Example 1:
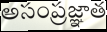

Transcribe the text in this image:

అసంప్రజ్ఞాత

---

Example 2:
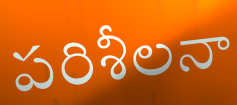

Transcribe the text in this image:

పరిశీలనా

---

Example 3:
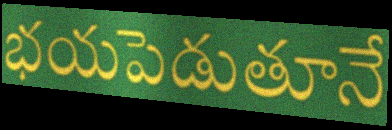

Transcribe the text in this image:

భయపెడుతూనే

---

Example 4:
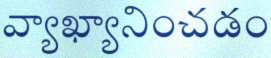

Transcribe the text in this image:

వ్యాఖ్యానించడం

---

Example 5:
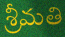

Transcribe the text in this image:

శ్రీమతి